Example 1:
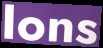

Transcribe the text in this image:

Ions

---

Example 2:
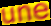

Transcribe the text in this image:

une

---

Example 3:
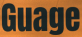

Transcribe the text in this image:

Guage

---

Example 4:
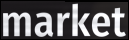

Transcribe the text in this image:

market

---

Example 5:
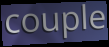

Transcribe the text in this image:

couple